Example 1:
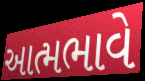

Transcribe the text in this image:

આત્મભાવે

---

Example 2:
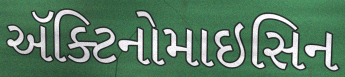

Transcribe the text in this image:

ઍક્ટિનોમાઇસિન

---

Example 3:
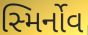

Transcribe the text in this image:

સ્મિર્નોવ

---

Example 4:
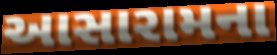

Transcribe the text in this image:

આસારામના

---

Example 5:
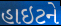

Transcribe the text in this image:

હાઇટને